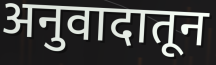
अनुवादातून